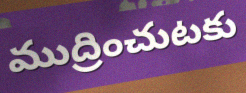
ముద్రించుటకు